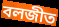
বলজীত